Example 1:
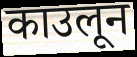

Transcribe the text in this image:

काउलून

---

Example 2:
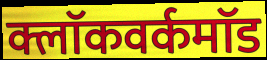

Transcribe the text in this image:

क्लॉकवर्कमॉड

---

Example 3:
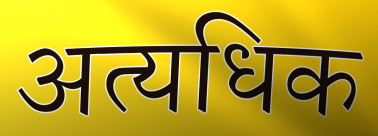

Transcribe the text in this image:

अत्‍यधिक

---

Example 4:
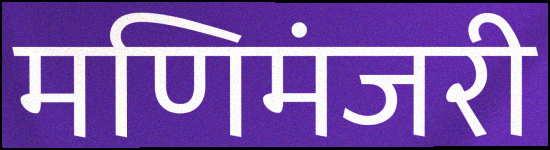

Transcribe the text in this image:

मणिमंजरी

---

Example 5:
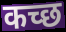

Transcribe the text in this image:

कच्‍छ